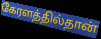
கேரளத்தில்தான்